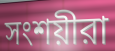
সংশয়ীরা